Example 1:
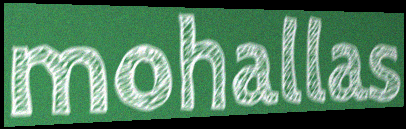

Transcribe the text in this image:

mohallas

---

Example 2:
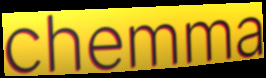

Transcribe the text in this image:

chemma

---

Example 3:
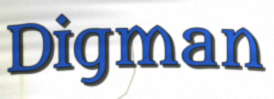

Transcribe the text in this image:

Digman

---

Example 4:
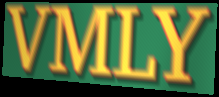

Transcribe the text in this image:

VMLY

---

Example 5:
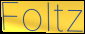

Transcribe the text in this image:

Foltz